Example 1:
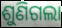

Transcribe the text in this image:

ଶୁଣିଗଲା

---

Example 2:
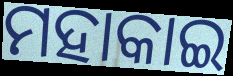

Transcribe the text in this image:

ମହାକାଇ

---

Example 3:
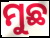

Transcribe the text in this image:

ମୁଛ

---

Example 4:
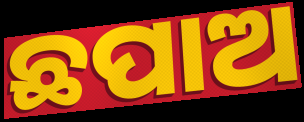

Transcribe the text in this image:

ଛପାଅ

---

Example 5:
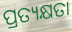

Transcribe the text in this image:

ପ୍ରତ୍ୟକ୍ଷତା